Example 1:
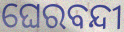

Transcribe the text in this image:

ଘେରବନ୍ଦୀ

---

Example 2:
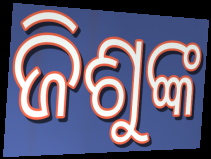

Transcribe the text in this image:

ଜିଶୁଙ୍କ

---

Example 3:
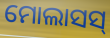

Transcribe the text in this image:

ମୋଲାସସ୍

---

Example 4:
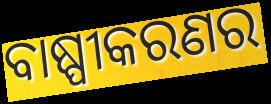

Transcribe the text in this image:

ବାଷ୍ପୀକରଣର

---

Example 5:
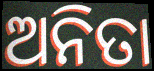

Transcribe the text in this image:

ଅନିତା